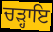
ਚੜ੍ਹਾਇ